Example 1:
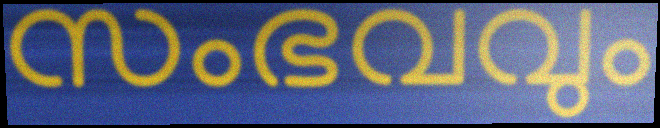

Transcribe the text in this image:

സംഭവവും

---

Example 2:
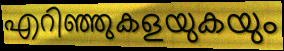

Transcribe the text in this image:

എറിഞ്ഞുകളയുകയും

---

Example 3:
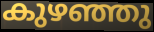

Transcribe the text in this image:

കുഴഞ്ഞു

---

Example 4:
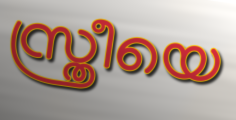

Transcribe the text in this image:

സ്ത്രീയെ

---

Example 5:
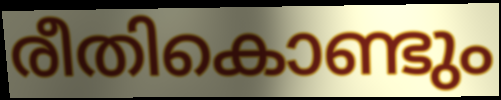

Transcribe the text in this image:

രീതികൊണ്ടും